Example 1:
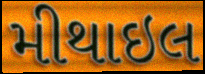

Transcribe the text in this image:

મીથાઇલ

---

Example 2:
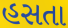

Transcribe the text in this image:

હસતા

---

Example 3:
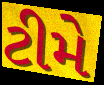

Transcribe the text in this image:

ટીમે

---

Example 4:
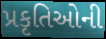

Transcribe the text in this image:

પ્રકૃતિઓની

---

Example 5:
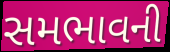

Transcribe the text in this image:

સમભાવની